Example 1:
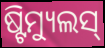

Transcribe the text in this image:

ଷ୍ଟିମ୍ୟୁଲସ୍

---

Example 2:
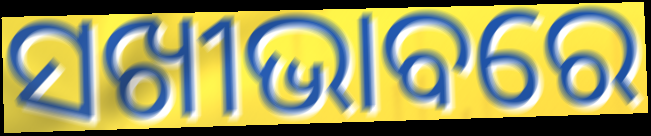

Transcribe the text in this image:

ସଖୀଭାବରେ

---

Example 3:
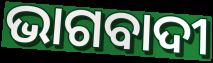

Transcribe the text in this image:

ଭାଗବାଦୀ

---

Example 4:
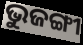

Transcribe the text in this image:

ଭୁଜଙ୍ଗୀ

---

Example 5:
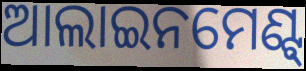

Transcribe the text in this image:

ଆଲାଇନମେଣ୍ଟ୍